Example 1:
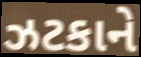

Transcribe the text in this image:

ઝટકાને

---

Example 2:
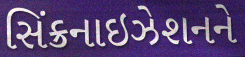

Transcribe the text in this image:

સિંક્રનાઇઝેશનને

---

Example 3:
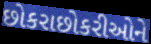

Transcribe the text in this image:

છોકરાછોકરીઓને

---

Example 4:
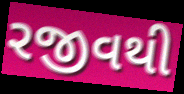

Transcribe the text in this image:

રજીવથી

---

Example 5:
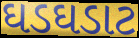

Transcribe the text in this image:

ઘડઘડાટ